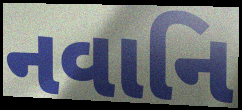
નવાનિ